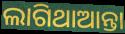
ଲାଗିଥାଆନ୍ତା